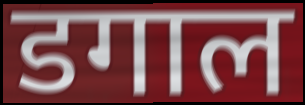
डगाल